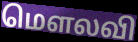
மௌலவி